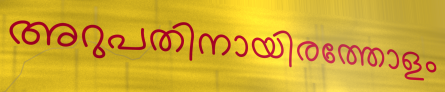
അറുപതിനായിരത്തോളം